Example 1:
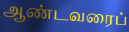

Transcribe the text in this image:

ஆண்டவரைப்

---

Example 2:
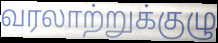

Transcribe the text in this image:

வரலாற்றுக்குழு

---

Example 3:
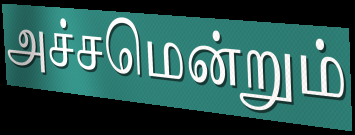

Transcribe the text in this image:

அச்சமென்றும்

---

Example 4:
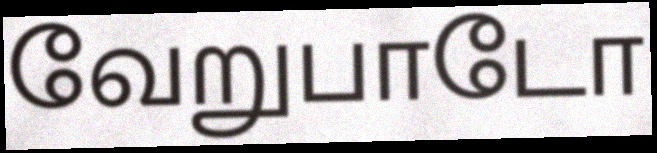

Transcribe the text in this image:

வேறுபாடோ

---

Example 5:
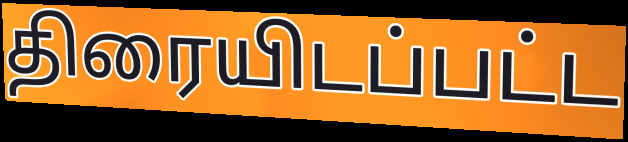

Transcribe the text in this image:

திரையிடப்பட்ட